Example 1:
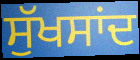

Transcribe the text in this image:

ਸੁੱਖਸਾਂਦ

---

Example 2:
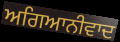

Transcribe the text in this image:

ਅਗਿਆਨੀਵਾਦ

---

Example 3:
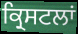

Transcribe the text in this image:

ਕ੍ਰਿਸਟਲਾਂ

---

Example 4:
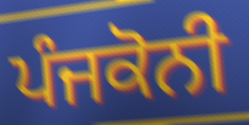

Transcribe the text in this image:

ਪੰਜਕੋਨੀ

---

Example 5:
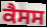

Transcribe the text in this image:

ਕੈਸਸ